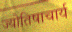
ज्योतिषाचार्य